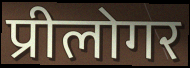
प्रीलोगर